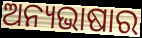
ଅନ୍ୟଭାଷାର